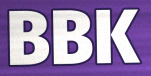
BBK